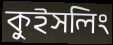
কুইসলিং